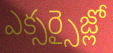
ఎక్సర్సైజ్లో